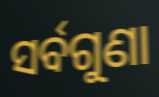
ସର୍ବଗୁଣା